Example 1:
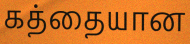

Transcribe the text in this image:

கத்தையான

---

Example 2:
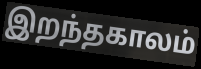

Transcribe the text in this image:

இறந்தகாலம்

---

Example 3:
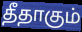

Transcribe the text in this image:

தீதாகும்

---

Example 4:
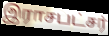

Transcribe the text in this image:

இராசபட்சர்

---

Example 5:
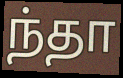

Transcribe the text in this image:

ந்தா